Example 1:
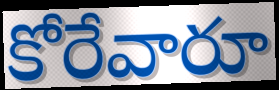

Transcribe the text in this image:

కోరేవారూ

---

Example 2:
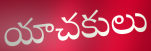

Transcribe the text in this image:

యాచకులు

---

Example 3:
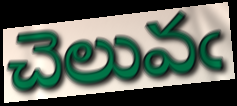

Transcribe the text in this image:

చెలువఁ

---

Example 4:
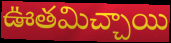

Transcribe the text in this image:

ఊతమిచ్చాయి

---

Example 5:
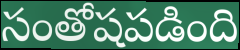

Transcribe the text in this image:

సంతోషపడింది